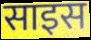
साइस